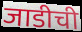
जाडीची